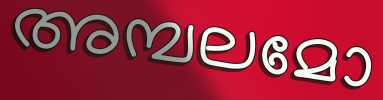
അമ്പലമോ